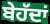
ਬੇਹੱਦਾਂ